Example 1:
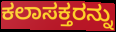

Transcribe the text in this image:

ಕಲಾಸಕ್ತರನ್ನು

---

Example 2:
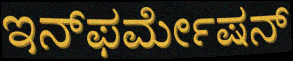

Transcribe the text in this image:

ಇನ್‌ಫರ್ಮೇಷನ್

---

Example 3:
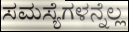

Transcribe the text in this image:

ಸಮಸ್ಯೆಗಳನ್ನೆಲ್ಲ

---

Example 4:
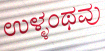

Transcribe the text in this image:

ಉಳ್ಳಂಥವು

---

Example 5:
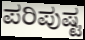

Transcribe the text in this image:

ಪರಿಪುಷ್ಟ